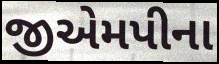
જીએમપીના